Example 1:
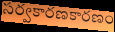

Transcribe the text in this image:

సర్వకారణకారణం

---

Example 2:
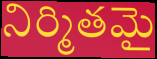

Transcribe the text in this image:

నిర్మితమై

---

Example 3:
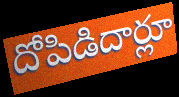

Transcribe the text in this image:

దోపిడిదార్లూ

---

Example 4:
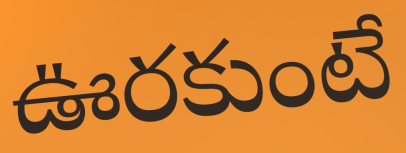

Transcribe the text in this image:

ఊరకుంటే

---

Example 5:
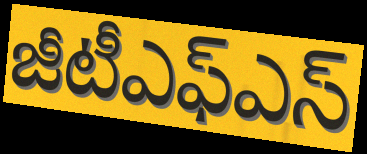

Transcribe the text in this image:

జీటీఎఫ్ఎస్